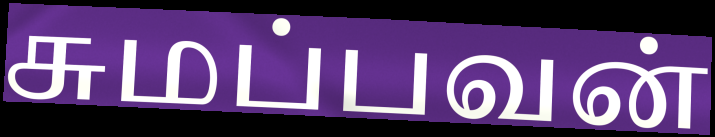
சுமப்பவன்